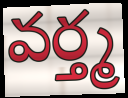
వర్త్మ